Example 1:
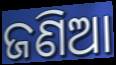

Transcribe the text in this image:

ଜଣିଆ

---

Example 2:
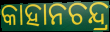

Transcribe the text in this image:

କାହାନଚନ୍ଦ୍ର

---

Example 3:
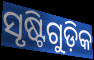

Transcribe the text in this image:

ସୃଷ୍ଟିଗୁଡ଼ିକ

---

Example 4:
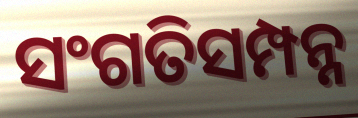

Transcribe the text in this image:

ସଂଗତିସମ୍ପନ୍ନ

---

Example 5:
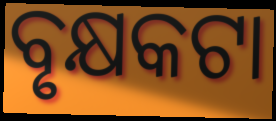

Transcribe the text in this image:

ବୃକ୍ଷକଟା